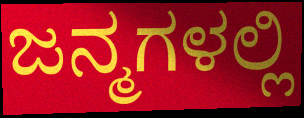
ಜನ್ಮಗಳಲ್ಲಿ